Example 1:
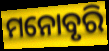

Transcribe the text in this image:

ମନୋବୃରି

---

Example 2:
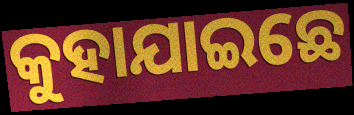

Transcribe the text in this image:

କୁହାଯାଇଛେ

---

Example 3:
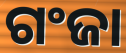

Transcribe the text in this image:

ଗଂଜା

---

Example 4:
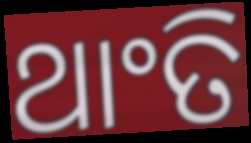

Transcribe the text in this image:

ଥାଂତି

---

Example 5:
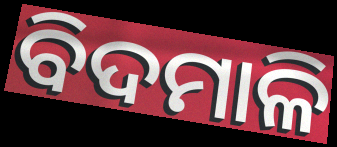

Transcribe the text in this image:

ବିଦମାଳି